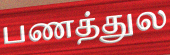
பணத்துல